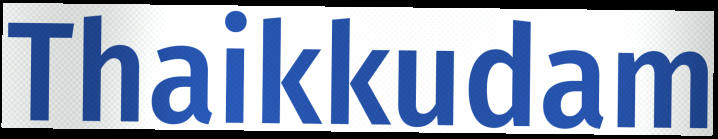
Thaikkudam